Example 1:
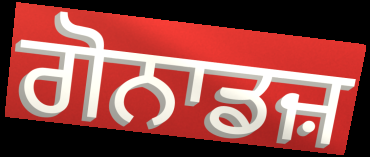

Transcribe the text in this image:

ਗੋਨਾਡਜ਼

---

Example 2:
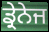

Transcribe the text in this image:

ਡ੍ਰੇਨੇਜ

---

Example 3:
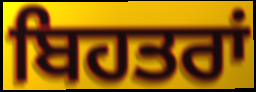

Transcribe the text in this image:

ਬਿਹਤਰਾਂ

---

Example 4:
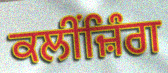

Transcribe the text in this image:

ਕਲੀਂਜ਼ਿੰਗ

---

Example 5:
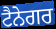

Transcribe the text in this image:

ਟੈਨੇਗਰ